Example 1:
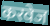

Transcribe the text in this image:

करवेज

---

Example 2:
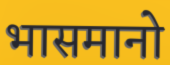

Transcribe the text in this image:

भासमानो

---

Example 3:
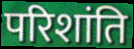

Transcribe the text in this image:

परिशांति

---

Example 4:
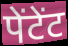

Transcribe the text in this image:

पेंटेंट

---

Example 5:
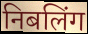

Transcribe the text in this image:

निबलिंग